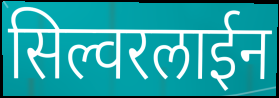
सिल्वरलाईन